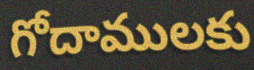
గోదాములకు